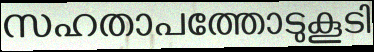
സഹതാപത്തോടുകൂടി